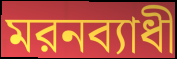
মরনব্যাধী